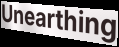
Unearthing